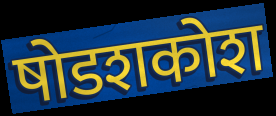
षोडशकोश